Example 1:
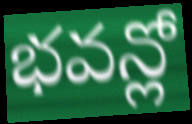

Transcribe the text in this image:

భవన్లో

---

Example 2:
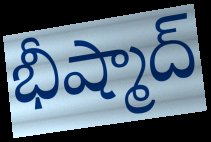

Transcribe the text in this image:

భీష్మాద్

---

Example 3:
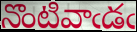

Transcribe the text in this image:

నొంటివాఁడఁ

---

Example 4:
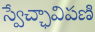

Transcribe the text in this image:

స్వేచ్ఛావిపణి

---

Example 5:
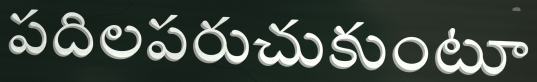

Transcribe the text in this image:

పదిలపరుచుకుంటూ